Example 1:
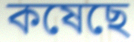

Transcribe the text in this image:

কষেছে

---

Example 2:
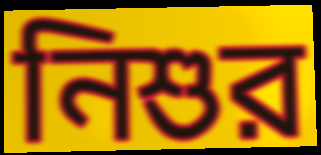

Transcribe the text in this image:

নিশুর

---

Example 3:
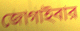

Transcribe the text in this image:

জোগাইবার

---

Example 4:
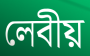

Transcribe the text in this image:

লেবীয়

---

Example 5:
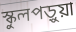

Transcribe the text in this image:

স্কুলপড়ুয়া